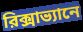
রিক্সাভ্যানে